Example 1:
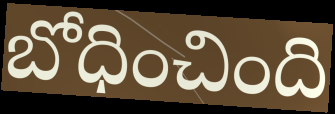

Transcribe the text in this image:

బోధించింది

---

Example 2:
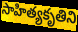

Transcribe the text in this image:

సాహిత్యకృతిని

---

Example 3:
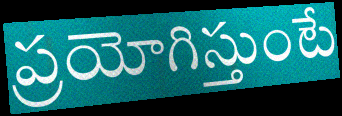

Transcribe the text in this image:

ప్రయోగిస్తుంటే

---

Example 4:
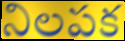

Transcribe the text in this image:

నిలపక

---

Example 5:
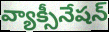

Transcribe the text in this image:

వ్యాక్సీనేషన్